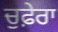
ਚੁਫ਼ੇਰਾ